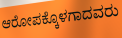
ಆರೋಪಕ್ಕೊಳಗಾದವರು